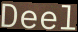
Deel